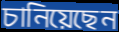
চানিয়েছেন